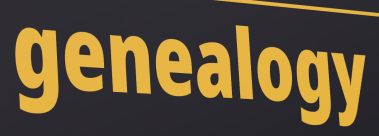
genealogy